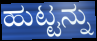
ಹುಟ್ಟನ್ನು